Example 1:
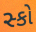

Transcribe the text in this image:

સ્કો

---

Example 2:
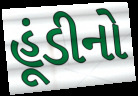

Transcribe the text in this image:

હૂંડીનો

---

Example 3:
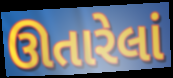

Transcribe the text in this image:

ઊતારેલાં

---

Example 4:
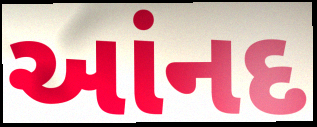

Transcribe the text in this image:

આંનદ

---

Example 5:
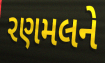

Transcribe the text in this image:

રણમલને